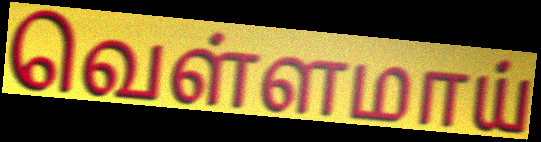
வெள்ளமாய்